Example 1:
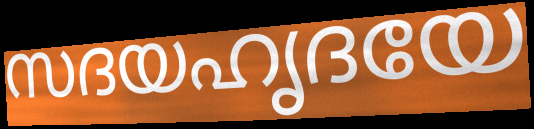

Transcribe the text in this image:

സദയഹൃദയേ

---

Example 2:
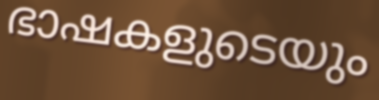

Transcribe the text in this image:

ഭാഷകളുടെയും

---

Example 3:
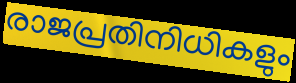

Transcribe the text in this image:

രാജപ്രതിനിധികളും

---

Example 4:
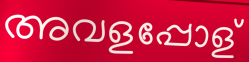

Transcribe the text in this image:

അവളപ്പോള്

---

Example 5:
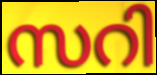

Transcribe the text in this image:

സറി